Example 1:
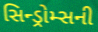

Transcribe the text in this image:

સિન્ડ્રોમ્સની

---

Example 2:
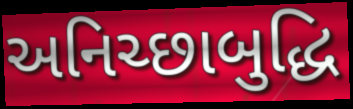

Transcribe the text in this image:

અનિચ્છાબુદ્ધિ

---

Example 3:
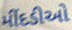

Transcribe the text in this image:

મીંદડીઓ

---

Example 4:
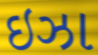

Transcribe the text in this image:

ઇઝા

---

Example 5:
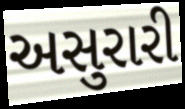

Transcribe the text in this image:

અસુરારી